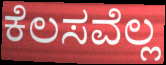
ಕೆಲಸವೆಲ್ಲ